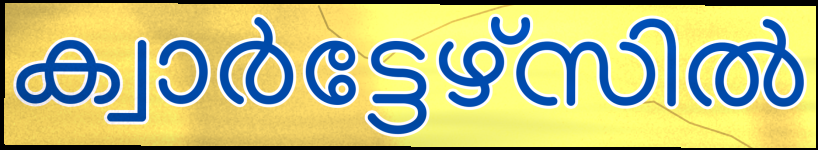
ക്വാർട്ടേഴ്സിൽ